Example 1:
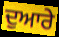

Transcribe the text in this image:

ਦੁਆਰੇ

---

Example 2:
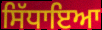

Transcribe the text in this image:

ਸਿੱਧਾਇਆ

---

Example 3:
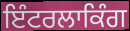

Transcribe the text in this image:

ਇੰਟਰਲਾਕਿੰਗ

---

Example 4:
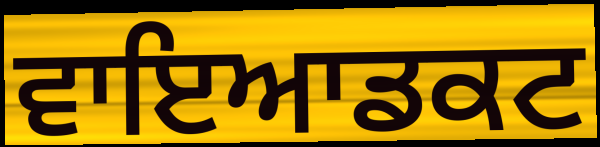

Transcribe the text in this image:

ਵਾਇਆਡਕਟ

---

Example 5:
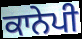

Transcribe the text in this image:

ਕਾਨੇਪੀ